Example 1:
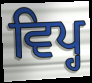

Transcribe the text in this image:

ਵਿਪ੍ਹ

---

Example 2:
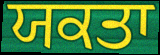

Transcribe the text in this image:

ਯਕਤਾ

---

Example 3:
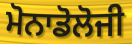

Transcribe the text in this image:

ਮੋਨਾਡੋਲੋਜੀ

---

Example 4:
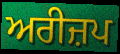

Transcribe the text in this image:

ਅਰੀਜ਼ਪ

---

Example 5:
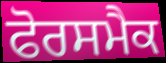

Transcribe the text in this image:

ਫੋਰਸਮੈਕ